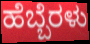
ಹೆಬ್ಬೆರಳು